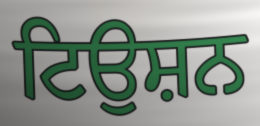
ਟਿਉਸ਼ਨ